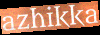
azhikka